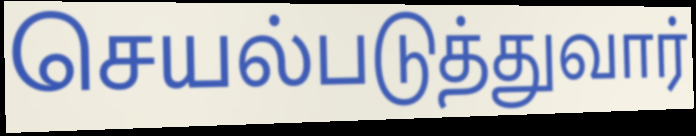
செயல்படுத்துவார்